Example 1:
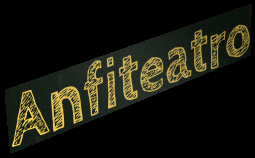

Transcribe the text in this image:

Anfiteatro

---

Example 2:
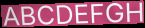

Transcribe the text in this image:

ABCDEFGH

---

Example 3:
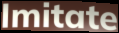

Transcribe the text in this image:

Imitate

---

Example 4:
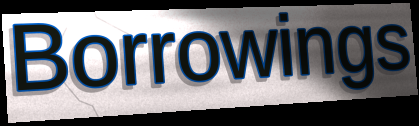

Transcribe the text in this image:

Borrowings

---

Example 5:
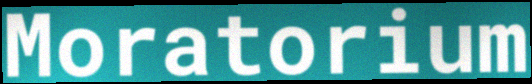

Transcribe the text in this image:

Moratorium